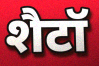
शैटॉ